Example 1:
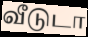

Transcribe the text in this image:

வீடுடா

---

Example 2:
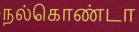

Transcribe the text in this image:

நல்கொண்டா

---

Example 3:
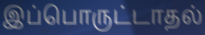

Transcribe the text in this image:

இப்பொருட்டாதல்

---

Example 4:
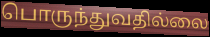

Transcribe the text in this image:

பொருந்துவதில்லை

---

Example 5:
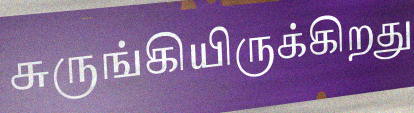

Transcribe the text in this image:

சுருங்கியிருக்கிறது